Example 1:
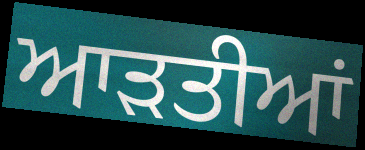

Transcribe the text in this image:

ਆਡ਼ਤੀਆਂ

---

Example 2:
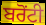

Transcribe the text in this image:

ਬਰੋਂਟੀ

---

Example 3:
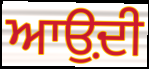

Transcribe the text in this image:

ਆਉ਼ਦੀ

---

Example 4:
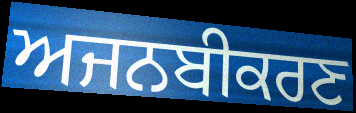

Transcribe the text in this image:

ਅਜਨਬੀਕਰਣ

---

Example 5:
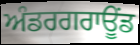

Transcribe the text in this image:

ਅੰਡਰਗਰਾਊਂਡ